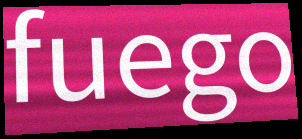
fuego